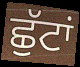
ਛੁੱਟਾਂ